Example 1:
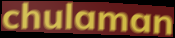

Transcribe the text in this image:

chulaman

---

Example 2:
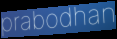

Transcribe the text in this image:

prabodhan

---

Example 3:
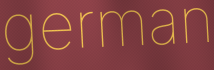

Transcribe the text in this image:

german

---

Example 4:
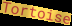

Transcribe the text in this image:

Tortoise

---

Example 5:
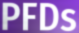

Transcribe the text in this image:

PFDs